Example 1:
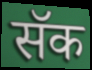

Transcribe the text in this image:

सॅक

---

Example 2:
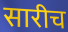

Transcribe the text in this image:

सारीच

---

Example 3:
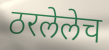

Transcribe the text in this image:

ठरलेलेच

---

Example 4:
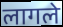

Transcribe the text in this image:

लागले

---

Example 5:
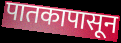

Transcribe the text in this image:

पातकापासून